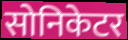
सोनिकेटर